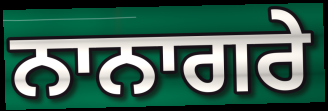
ਨਾਨਾਗਰੇ